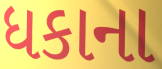
ધકાના